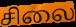
சிலை